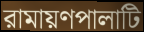
রামায়ণপালাটি